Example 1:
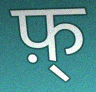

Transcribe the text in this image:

फ़्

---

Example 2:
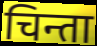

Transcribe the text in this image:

चिन्ता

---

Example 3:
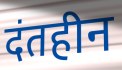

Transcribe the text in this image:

दंतहीन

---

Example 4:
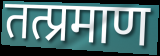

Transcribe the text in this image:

तत्प्रमाण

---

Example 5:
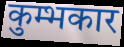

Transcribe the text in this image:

कुम्भकार